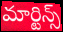
మార్టిన్స్